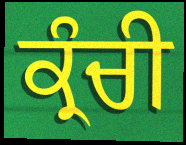
ਕ੍ਰੰਚੀ